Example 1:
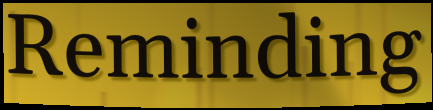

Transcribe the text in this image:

Reminding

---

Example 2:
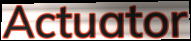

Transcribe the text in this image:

Actuator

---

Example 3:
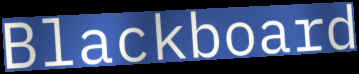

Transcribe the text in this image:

Blackboard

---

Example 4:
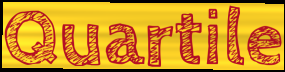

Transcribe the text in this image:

Quartile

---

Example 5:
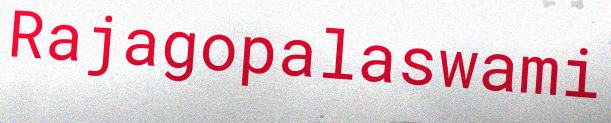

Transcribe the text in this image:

Rajagopalaswami